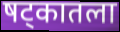
षट्कातला